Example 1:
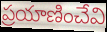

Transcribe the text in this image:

ప్రయాణించేవి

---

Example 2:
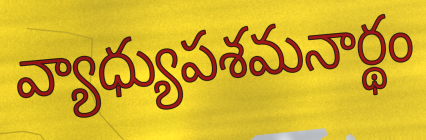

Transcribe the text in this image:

వ్యాధ్యుపశమనార్థం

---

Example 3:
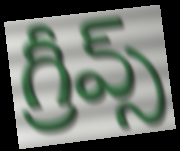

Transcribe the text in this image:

గ్రీవ్స్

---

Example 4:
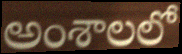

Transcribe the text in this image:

అంశాలలో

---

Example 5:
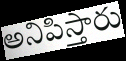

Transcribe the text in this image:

అనిపిస్తారు